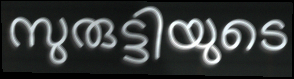
സുരുട്ടിയുടെ